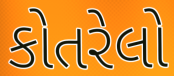
કોતરેલો